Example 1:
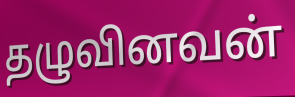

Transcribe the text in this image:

தழுவினவன்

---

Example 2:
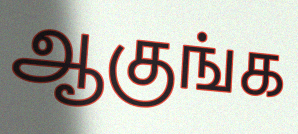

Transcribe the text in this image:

ஆகுங்க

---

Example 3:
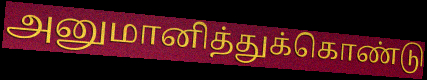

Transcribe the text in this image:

அனுமானித்துக்கொண்டு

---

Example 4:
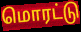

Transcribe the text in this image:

மொரட்டு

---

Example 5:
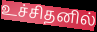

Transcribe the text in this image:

உச்சிதனில்